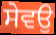
ਸੇਵਉ